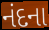
નંદના